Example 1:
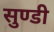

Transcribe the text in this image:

सुण्डी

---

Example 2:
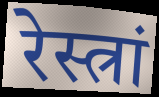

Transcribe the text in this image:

रेस्त्रां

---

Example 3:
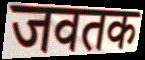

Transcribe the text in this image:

जवतक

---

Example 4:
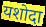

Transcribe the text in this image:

यशोदा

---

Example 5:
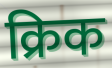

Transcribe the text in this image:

क्रिक